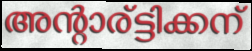
അന്റാര്ട്ടിക്കന്